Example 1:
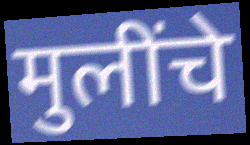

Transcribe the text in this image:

मुलींचे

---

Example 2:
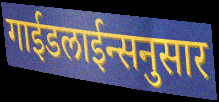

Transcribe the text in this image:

गाईडलाईन्सनुसार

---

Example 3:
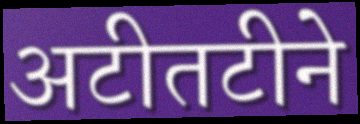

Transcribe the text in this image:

अटीतटीने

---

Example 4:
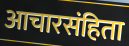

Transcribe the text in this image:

आचारसंहिता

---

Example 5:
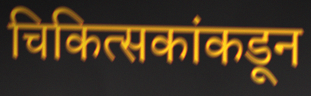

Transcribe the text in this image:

चिकित्सकांकडून